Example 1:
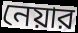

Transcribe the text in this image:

নেয়ার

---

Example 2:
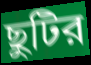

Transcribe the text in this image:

ছুটির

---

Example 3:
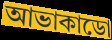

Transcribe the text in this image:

আভাকাডো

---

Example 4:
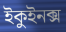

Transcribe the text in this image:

ইকুইনক্স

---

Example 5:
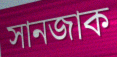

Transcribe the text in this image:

সানজাক